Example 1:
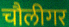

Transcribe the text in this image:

चौलीगर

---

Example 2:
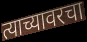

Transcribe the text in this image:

त्याच्यावरचा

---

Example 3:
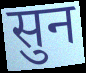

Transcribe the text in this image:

सुन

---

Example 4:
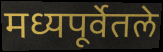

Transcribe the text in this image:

मध्यपूर्वेतले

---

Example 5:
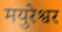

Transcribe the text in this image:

मयुरेश्वर